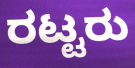
ರಟ್ಟರು